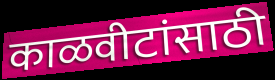
काळवीटांसाठी